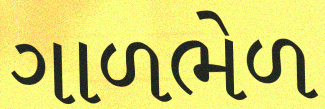
ગાળભેળ